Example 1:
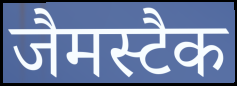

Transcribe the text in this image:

जैमस्टैक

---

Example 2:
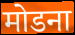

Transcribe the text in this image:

मोडना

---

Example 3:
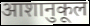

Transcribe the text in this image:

आशानुकूल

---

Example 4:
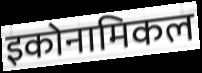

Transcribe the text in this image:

इकोनामिकल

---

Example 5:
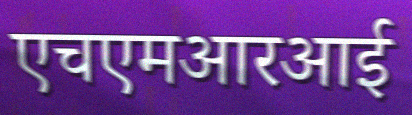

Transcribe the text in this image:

एचएमआरआई